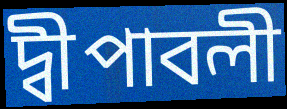
দ্বীপাবলী